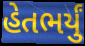
હેતભર્યું